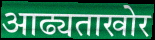
आढ्यताखोर